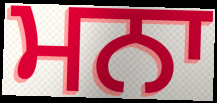
ਮਨਾ